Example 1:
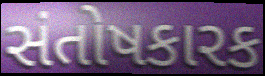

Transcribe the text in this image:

સંતોષકારક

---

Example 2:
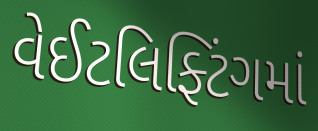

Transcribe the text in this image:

વેઈટલિફ્ટિંગમાં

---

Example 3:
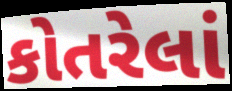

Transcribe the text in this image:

કોતરેલાં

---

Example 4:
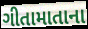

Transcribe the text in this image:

ગીતામાતાના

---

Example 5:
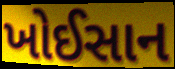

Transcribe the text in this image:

ખોઈસાન